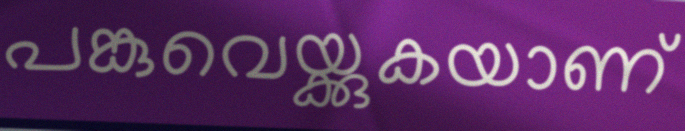
പങ്കുവെയ്ക്കുകയാണ്